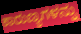
ಕಾರುಣ್ಯಗಳನ್ನು